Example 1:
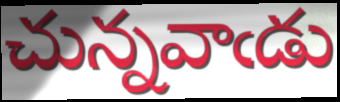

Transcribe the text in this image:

చున్నవాఁడు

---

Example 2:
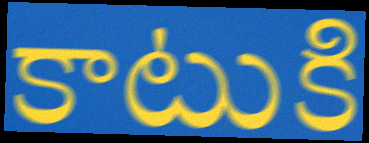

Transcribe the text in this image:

కాటుకి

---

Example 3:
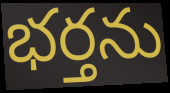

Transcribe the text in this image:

భర్తను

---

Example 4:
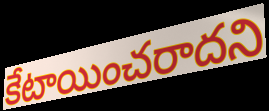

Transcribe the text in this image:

కేటాయించరాదని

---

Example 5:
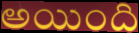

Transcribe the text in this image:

అయింది